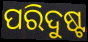
ପରିଦୁଷ୍ଟ